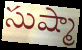
సుష్మా